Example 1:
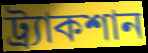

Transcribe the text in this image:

ট্র্যাকশান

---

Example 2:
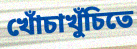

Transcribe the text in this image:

খোঁচাখুঁচিতে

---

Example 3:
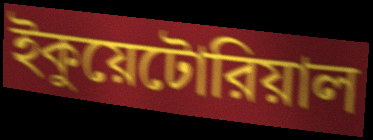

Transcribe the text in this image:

ইকুয়েটোরিয়াল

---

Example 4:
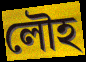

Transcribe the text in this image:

লৌহ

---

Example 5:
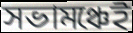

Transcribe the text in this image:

সভামঞ্চেই